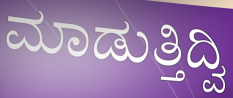
ಮಾಡುತ್ತಿದ್ವಿ